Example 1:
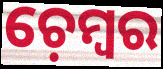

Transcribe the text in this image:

ଚ଼େମ୍ୱର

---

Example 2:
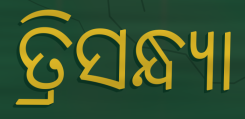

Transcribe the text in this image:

ତ୍ରିସନ୍ଧ୍ୟା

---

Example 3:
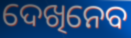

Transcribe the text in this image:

ଦେଖିନେବ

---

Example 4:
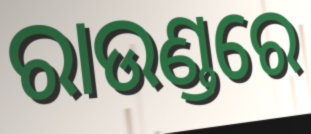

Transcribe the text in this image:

ରାଉଣ୍ଡରେ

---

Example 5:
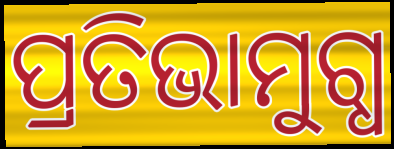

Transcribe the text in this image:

ପ୍ରତିଭାମୁଗ୍ଧ